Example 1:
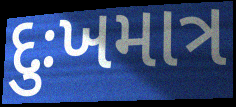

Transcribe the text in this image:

દુઃખમાત્ર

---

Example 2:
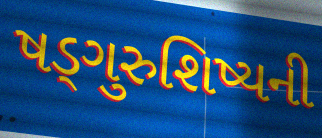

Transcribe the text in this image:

ષડ્ગુરુશિષ્યની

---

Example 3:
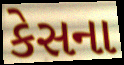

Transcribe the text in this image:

કેસના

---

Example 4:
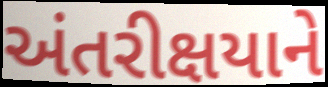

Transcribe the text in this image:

અંતરીક્ષયાને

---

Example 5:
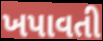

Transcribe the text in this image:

ખપાવતી